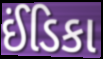
ઈંડિકા